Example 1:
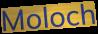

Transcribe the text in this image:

Moloch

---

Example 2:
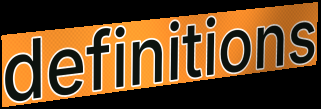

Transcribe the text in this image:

definitions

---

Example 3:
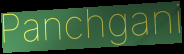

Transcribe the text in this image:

Panchgani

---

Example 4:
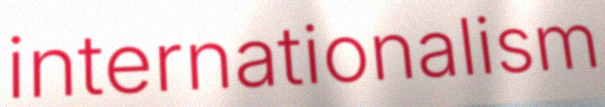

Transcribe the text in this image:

internationalism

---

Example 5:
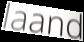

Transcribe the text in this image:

laand